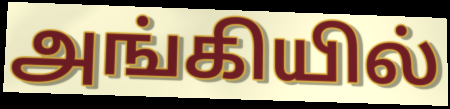
அங்கியில்